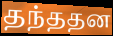
தந்ததன